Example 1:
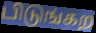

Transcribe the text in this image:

பிடுங்கற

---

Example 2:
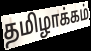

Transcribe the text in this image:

தமிழாக்கம்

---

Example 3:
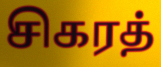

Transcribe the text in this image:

சிகரத்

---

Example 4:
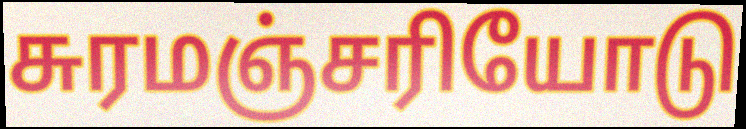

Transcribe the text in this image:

சுரமஞ்சரியோடு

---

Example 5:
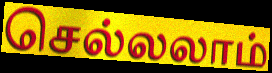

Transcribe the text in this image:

செல்லலாம்